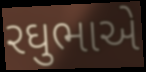
રઘુભાએ